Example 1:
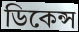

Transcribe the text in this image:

ডিকেন্স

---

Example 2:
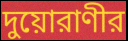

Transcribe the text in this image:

দুয়োরাণীর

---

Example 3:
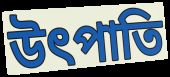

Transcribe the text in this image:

উৎপাতি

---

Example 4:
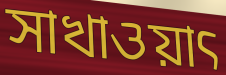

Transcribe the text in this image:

সাখাওয়াৎ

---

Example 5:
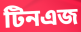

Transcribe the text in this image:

টিনএজ